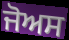
ਜੋਅਸ